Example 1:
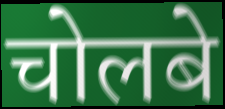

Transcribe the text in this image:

चोलबे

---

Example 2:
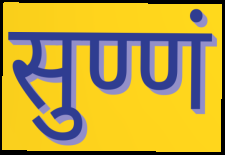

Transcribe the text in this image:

सुण्णं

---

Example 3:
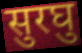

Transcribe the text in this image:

सुरघु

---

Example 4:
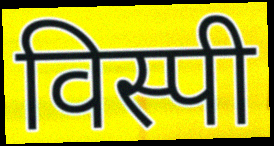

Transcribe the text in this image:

विस्पी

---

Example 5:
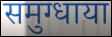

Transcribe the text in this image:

समुग्धाया